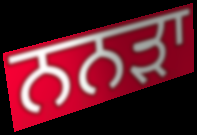
ਨਨੜਾ